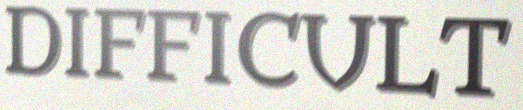
DIFFICULT